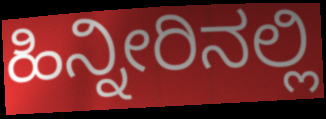
ಹಿನ್ನೀರಿನಲ್ಲಿ